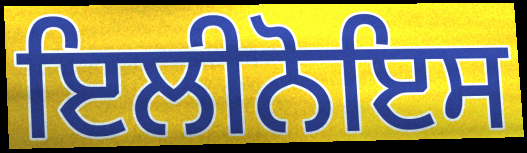
ਇਲੀਨੋਇਸ